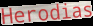
Herodias